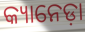
କ୍ୟାନେଡ଼ା